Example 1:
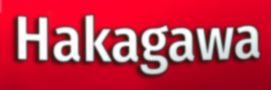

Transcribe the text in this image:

Hakagawa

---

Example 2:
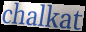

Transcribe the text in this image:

chalkat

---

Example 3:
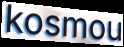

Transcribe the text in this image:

kosmou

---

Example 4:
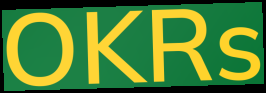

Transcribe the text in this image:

OKRs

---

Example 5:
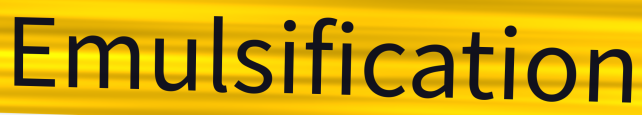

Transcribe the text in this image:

Emulsification